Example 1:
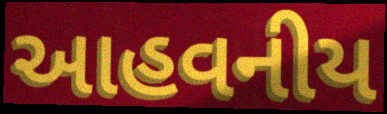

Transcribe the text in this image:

આહવનીય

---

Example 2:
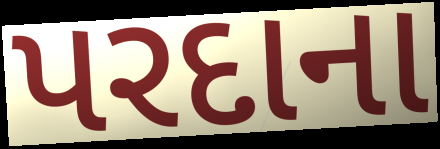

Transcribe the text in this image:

પરદાના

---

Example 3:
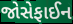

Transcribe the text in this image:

જોસેફાઈન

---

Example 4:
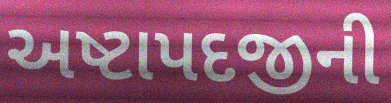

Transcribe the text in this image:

અષ્ટાપદજીની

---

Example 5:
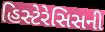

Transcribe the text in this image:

હિસ્ટેરેસિસની